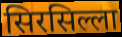
सिरसिल्ला